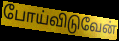
போய்விடுவேன்